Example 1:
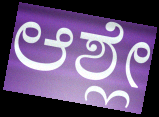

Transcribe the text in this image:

ಆಶ್ಲೇ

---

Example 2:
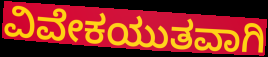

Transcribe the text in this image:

ವಿವೇಕಯುತವಾಗಿ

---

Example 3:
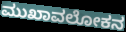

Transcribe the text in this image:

ಮುಖಾವಲೋಕನ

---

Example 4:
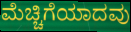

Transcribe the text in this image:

ಮೆಚ್ಚಿಗೆಯಾದವು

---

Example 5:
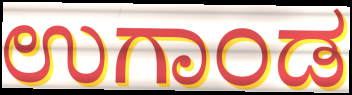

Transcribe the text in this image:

ಉಗಾಂಡ